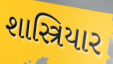
શાસ્ત્રિયાર